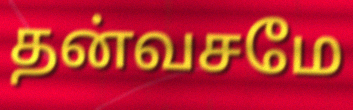
தன்வசமே